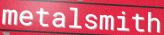
metalsmith